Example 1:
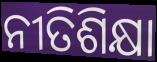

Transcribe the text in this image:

ନୀତିଶିକ୍ଷା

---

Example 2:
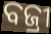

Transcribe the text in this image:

ବଜ୍ରୀ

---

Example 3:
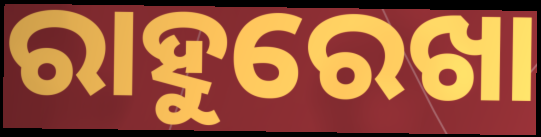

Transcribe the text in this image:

ରାହୁରେଖା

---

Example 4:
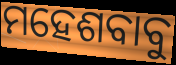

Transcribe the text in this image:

ମହେଶବାବୁ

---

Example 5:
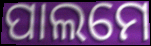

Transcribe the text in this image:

ପାଲମେ